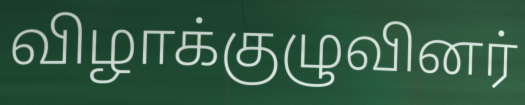
விழாக்குழுவினர்